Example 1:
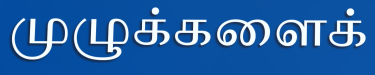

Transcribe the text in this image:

முழுக்களைக்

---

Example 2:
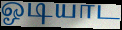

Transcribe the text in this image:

ஓடியாட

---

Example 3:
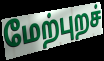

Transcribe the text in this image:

மேற்புறச்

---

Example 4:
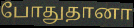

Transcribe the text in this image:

போதுதானா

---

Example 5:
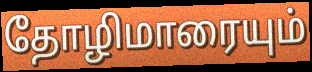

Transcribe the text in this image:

தோழிமாரையும்